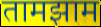
तामझाम